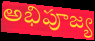
అభిపూజ్య